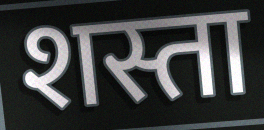
शस्ता